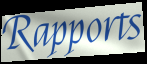
Rapports